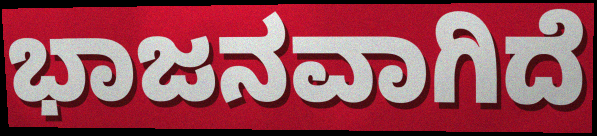
ಭಾಜನವಾಗಿದೆ